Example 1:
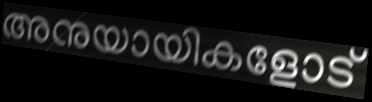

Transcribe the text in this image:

അനുയായികളോട്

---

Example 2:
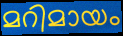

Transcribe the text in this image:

മറിമായം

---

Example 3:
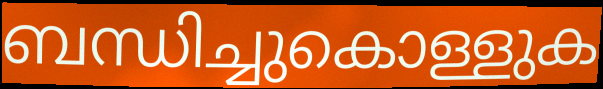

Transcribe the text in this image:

ബന്ധിച്ചുകൊള്ളുക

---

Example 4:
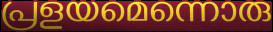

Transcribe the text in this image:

പ്രളയമെന്നൊരു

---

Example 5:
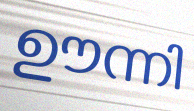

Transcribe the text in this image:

ഊന്നി